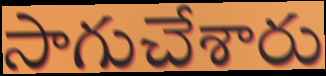
సాగుచేశారు